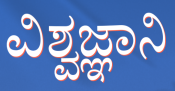
ವಿಶ್ವಜ್ಞಾನಿ